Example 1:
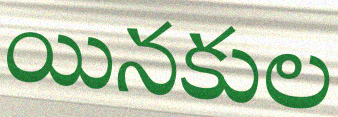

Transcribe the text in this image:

యినకుల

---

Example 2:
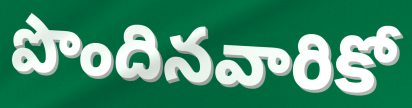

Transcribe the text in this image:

పొందినవారికో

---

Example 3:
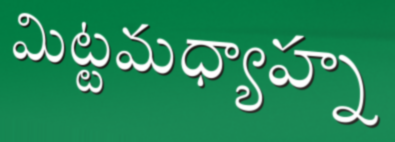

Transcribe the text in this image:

మిట్టమధ్యాహ్న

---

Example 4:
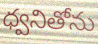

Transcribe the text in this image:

ధ్వనితోను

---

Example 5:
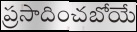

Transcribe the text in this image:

ప్రసాదించబోయే